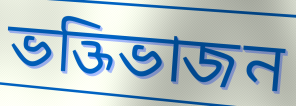
ভক্তিভাজন